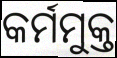
କର୍ମମୁକ୍ତ